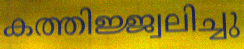
കത്തിജ്ജ്വലിച്ചു